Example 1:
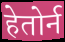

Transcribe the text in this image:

हेतोर्न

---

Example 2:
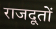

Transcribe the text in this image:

राजदूतों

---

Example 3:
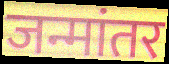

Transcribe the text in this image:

जन्मांतर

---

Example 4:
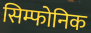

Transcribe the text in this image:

सिम्फोनिक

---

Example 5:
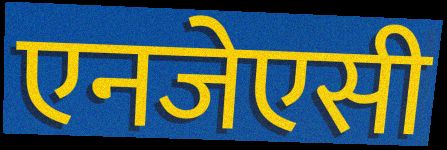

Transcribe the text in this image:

एनजेएसी